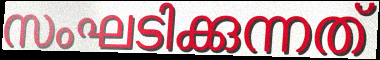
സംഘടിക്കുന്നത്